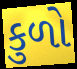
કુળો